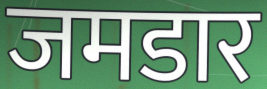
जमडार